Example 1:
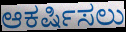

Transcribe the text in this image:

ಆಕರ್ಷಿಸಲು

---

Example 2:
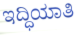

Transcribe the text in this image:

ಇದ್ಧಿಯಾತಿ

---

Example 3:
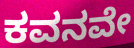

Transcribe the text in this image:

ಕವನವೇ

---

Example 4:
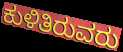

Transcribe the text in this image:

ಕುಳಿತಿರುವರು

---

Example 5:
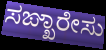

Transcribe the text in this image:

ಸಙ್ಖಾರೇಸು